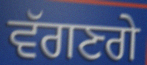
ਵੱਗਣਗੇ